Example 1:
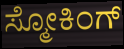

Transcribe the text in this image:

ಸ್ಮೋಕಿಂಗ್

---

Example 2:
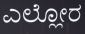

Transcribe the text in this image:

ಎಲ್ಲೋರ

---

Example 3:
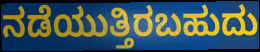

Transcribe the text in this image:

ನಡೆಯುತ್ತಿರಬಹುದು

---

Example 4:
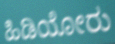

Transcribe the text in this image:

ಹಿಡಿಯೋರು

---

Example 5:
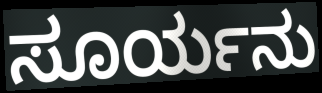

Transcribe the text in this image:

ಸೂರ್ಯನು